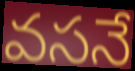
వసనే